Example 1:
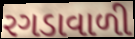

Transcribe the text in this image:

રગડાવાળી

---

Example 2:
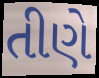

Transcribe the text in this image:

તીણે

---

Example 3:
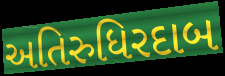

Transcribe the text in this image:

અતિરુધિરદાબ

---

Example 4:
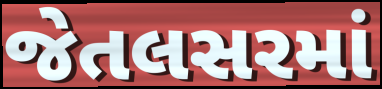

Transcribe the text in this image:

જેતલસરમાં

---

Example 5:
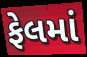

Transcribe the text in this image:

ફેલમાં